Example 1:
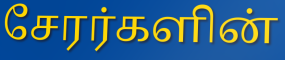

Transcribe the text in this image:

சேரர்களின்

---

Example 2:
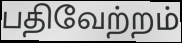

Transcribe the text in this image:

பதிவேற்றம்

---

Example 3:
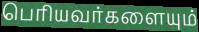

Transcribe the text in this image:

பெரியவர்களையும்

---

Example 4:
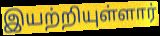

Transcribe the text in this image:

இயற்றியுள்ளார்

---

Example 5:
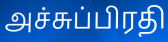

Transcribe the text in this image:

அச்சுப்பிரதி